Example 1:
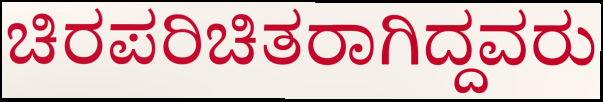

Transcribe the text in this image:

ಚಿರಪರಿಚಿತರಾಗಿದ್ದವರು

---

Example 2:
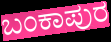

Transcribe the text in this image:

ಬಂಕಾಪುರ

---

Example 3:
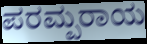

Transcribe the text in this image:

ಪರಮ್ಪರಾಯ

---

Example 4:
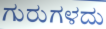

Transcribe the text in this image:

ಗುರುಗಳದು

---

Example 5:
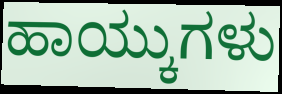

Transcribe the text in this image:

ಹಾಯ್ಕುಗಳು